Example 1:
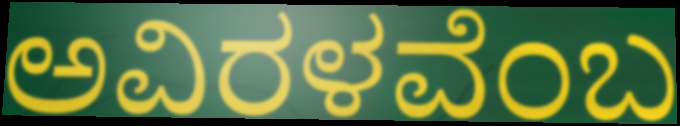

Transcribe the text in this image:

ಅವಿರಳವೆಂಬ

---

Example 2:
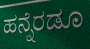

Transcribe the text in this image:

ಹನ್ನೆರಡೂ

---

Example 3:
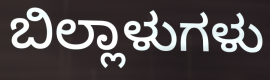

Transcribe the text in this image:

ಬಿಲ್ಲಾಳುಗಳು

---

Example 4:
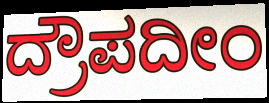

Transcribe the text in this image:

ದ್ರೌಪದೀಂ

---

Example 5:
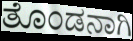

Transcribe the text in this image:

ತೊಂಡನಾಗಿ